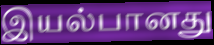
இயல்பானது